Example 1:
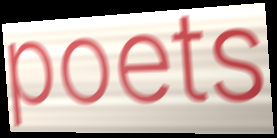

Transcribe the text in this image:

poets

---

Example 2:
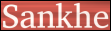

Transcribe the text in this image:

Sankhe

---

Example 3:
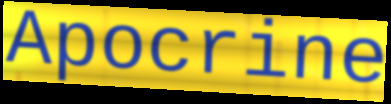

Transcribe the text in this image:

Apocrine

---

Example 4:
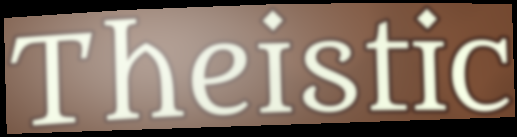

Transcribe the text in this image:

Theistic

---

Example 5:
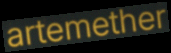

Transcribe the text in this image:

artemether